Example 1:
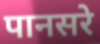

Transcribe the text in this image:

पानसरे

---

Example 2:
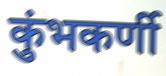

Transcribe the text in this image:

कुंभकर्णी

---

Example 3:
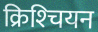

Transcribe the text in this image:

क्रिश्‍चियन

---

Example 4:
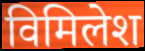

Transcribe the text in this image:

विमिलेश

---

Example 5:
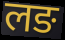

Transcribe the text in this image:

लङ